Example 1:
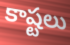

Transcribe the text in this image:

కాష్టలు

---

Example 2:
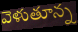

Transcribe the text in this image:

వెళుతూన్న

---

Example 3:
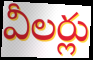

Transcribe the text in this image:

వీలర్లు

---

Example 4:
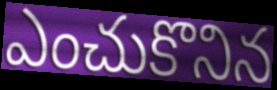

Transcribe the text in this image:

ఎంచుకొనిన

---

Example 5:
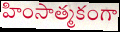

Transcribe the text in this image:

హింసాత్మకంగా